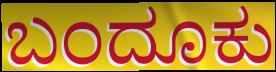
ಬಂದೂಕು